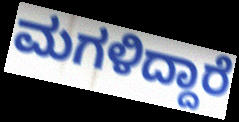
ಮಗಳಿದ್ದಾರೆ